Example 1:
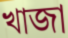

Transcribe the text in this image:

খাজা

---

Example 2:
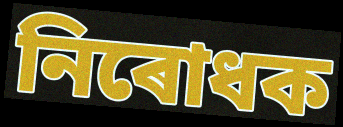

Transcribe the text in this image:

নিৰোধক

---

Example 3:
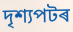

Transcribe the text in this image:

দৃশ্যপটৰ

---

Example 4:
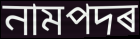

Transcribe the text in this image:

নামপদৰ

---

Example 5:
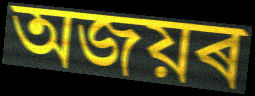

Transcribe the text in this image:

অজয়ৰ